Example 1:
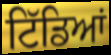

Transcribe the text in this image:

ਟਿੱਡਿਆਂ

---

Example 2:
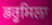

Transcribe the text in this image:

ਡਰੂਸਿਲਾ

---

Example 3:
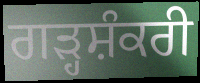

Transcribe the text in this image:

ਗੜ੍ਹਸ਼ੰਕਰੀ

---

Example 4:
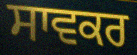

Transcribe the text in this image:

ਸਾਵਕਰ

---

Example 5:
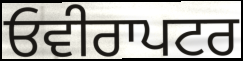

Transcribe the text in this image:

ਓਵੀਰਾਪਟਰ